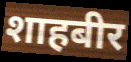
शाहबीर